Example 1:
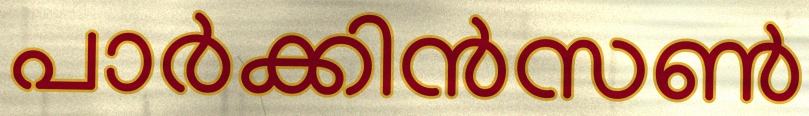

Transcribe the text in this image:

പാർക്കിൻസൺ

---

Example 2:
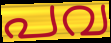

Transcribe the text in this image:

പവ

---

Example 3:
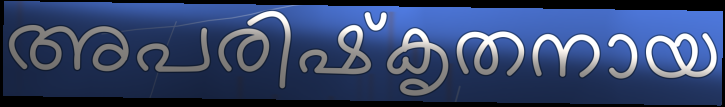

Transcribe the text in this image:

അപരിഷ്‌കൃതനായ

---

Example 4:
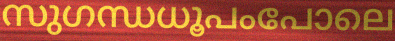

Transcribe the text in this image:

സുഗന്ധധൂപംപോലെ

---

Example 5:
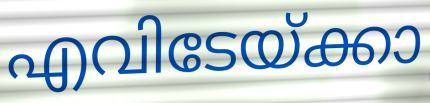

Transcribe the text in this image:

എവിടേയ്ക്കാ